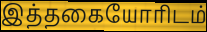
இத்தகையோரிடம்